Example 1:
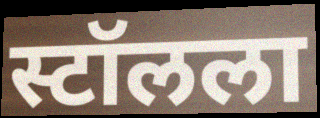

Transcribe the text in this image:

स्टॉलला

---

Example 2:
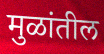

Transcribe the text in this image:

मुळांतील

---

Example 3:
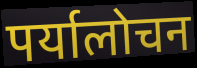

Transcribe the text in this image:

पर्यालोचन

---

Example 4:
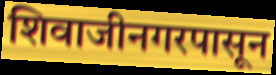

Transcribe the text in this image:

शिवाजीनगरपासून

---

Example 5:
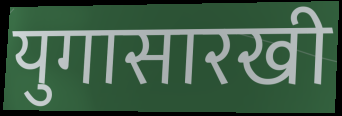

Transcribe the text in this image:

युगासारखी